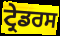
ਟ੍ਰੇਡਰਸ